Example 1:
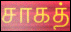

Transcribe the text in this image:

சாகத்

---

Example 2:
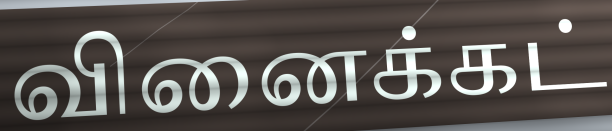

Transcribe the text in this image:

வினைக்கட்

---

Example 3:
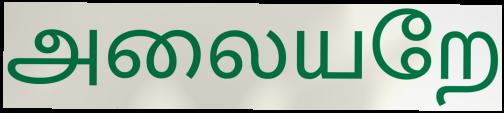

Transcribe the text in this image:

அலையறே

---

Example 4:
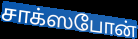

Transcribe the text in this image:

சாக்ஸபோன்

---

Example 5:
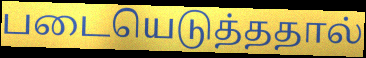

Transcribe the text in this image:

படையெடுத்ததால்